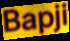
Bapji